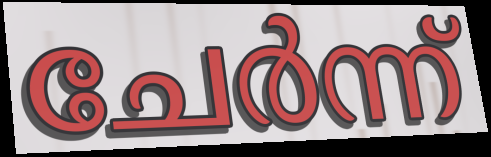
ചേർന്ന്